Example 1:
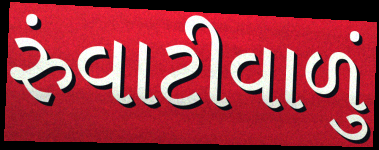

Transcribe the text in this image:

રુંવાટીવાળું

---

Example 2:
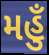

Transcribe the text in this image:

મહુઁ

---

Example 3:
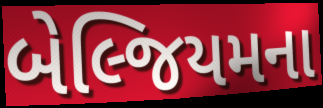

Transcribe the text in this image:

બેલ્જિયમના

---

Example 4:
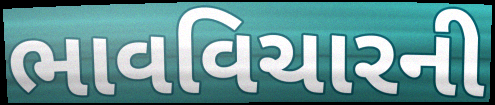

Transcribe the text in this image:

ભાવવિચારની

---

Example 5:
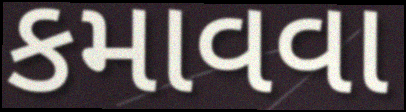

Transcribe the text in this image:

કમાવવા